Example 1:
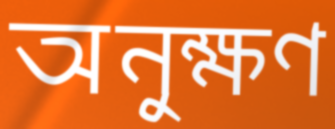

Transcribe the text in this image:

অনুক্ষণ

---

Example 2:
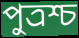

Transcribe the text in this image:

পুত্রশ্চ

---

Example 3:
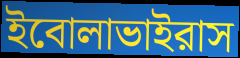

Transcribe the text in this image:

ইবোলাভাইরাস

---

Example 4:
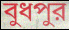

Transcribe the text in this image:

বুধপুর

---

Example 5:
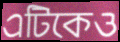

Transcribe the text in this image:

এটিকেও